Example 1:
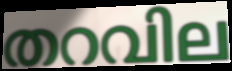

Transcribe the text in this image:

തറവില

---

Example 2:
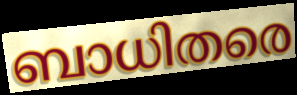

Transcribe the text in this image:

ബാധിതരെ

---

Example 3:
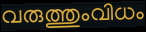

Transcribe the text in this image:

വരുത്തുംവിധം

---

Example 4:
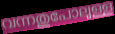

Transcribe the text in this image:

വന്നതുപോലുള്ള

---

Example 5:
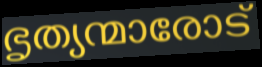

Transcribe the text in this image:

ഭൃത്യന്മാരോട്